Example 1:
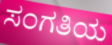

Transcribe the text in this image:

ಸಂಗತಿಯ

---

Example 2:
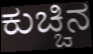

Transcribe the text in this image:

ಕುಚ್ಚಿನ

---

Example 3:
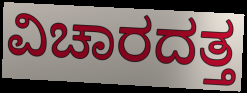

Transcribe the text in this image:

ವಿಚಾರದತ್ತ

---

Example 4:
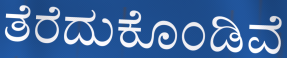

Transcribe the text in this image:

ತೆರೆದುಕೊಂಡಿವೆ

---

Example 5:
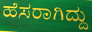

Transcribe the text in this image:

ಹೆಸರಾಗಿದ್ದು